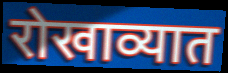
रोखाव्यात